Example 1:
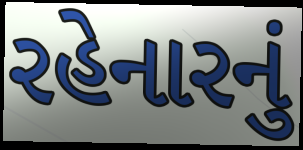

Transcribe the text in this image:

રહેનારનું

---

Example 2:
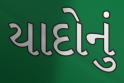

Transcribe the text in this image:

યાદોનું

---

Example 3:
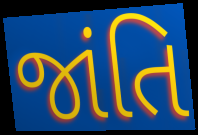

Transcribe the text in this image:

જાંતિ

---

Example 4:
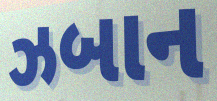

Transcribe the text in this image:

ઝબાન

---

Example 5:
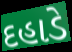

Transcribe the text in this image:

દહાડે